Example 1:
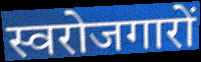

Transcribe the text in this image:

स्वरोजगारों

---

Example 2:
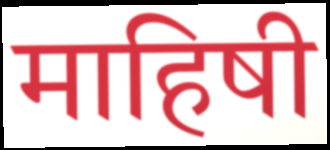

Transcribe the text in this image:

माहिषी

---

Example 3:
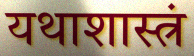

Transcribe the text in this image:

यथाशास्त्रं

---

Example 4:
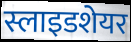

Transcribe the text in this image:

स्लाइडशेयर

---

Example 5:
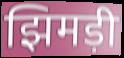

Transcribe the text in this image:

झिमड़ी